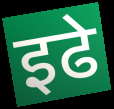
इढे